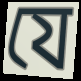
যে